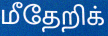
மீதேறிக்